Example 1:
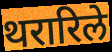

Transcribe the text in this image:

थरारिले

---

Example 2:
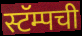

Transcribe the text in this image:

स्टॅम्पची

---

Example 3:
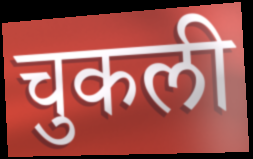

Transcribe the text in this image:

चुकली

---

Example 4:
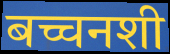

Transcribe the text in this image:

बच्चनशी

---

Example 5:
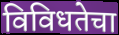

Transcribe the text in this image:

विविधतेचा